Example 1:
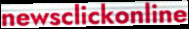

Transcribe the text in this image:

newsclickonline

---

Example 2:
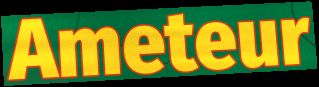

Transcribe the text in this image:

Ameteur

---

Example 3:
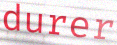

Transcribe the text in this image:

durer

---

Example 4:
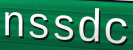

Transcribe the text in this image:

nssdc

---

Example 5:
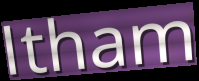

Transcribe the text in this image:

Itham